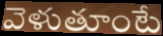
వెళుతూంటే